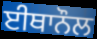
ਈਥਾਨੌਲ